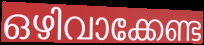
ഒഴിവാക്കേണ്ട